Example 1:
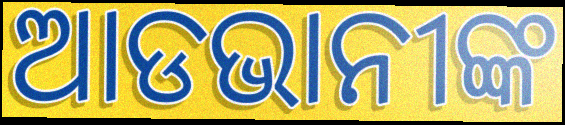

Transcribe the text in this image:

ଆଡଭାନୀଙ୍କ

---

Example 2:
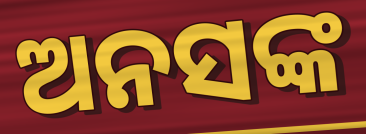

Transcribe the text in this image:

ଅନସଙ୍କ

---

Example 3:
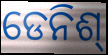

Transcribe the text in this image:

ଡେନିଶ୍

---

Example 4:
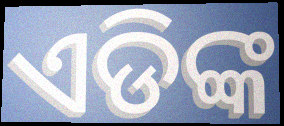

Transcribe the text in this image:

ଏଡିଙ୍କ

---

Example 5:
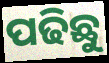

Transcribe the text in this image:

ପଢିଛୁ